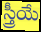
స్త్రీయే